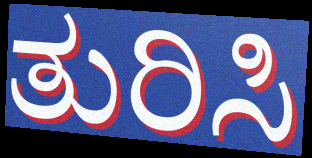
ತುರಿಸಿ